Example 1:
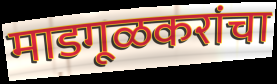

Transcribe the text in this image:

माडगूळकरांचा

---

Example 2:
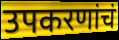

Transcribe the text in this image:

उपकरणांचं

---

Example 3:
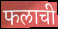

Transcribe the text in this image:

फलाची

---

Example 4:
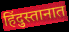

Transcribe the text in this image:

हिंदुस्तानात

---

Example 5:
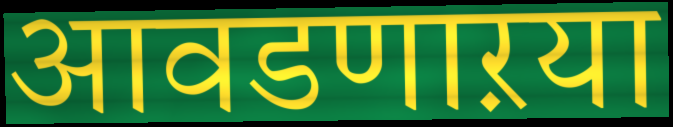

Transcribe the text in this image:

आवडणाऱया